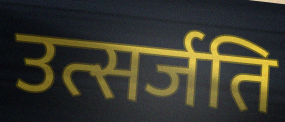
उत्सर्जति